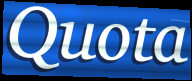
Quota